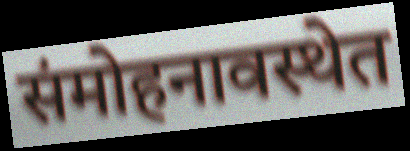
संमोहनावस्थेत